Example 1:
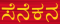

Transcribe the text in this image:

ಸೆನೆಕನ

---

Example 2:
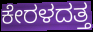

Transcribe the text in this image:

ಕೇರಳದತ್ತ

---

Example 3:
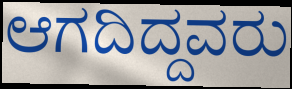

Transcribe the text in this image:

ಆಗದಿದ್ದವರು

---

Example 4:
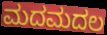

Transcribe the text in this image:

ಮದಮದಲ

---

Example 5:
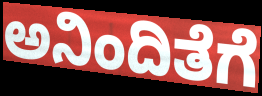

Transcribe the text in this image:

ಅನಿಂದಿತೆಗೆ